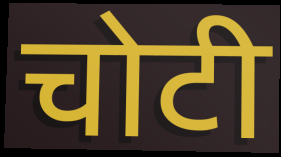
चोटी